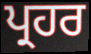
ਪ੍ਰਹਰ